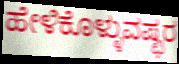
ಹೇಳಿಕೊಳ್ಳುವಷ್ಟರ